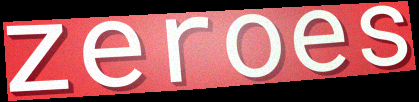
zeroes